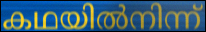
കഥയിൽനിന്ന്